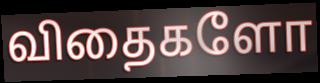
விதைகளோ